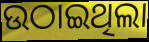
ଉଠାଇଥିଲା